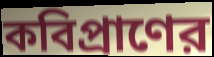
কবিপ্রাণের